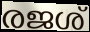
രജശ്